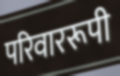
परिवाररूपी